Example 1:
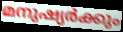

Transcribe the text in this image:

മനുഷ്യർക്കും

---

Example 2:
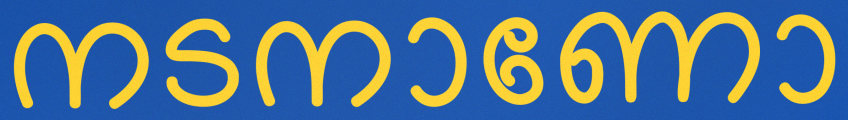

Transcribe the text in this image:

നടനാണോ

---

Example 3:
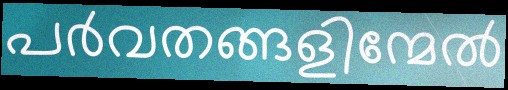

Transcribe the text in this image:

പർവതങ്ങളിന്മേൽ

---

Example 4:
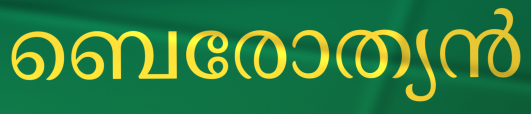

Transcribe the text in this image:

ബെരോത്യൻ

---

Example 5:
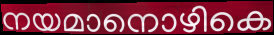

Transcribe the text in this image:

നയമാനൊഴികെ